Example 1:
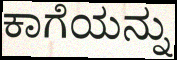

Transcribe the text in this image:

ಕಾಗೆಯನ್ನು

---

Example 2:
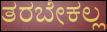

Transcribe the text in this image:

ತರಬೇಕಲ್ಲ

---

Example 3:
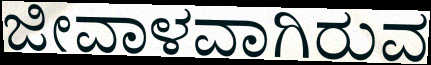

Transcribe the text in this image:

ಜೀವಾಳವಾಗಿರುವ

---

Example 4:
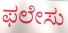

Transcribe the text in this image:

ಫಲೇಸು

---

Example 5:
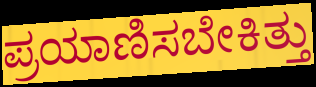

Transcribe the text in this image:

ಪ್ರಯಾಣಿಸಬೇಕಿತ್ತು